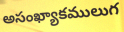
అసంఖ్యాకములుగ